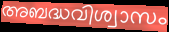
അബദ്ധവിശ്വാസം